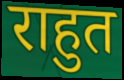
राहुत